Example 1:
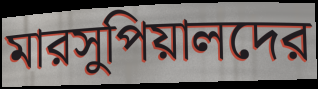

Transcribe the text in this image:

মারসুপিয়ালদের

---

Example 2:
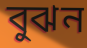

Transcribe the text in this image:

বুঝন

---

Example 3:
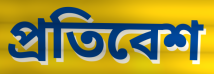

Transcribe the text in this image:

প্রতিবেশ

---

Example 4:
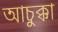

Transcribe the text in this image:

আচুক্কা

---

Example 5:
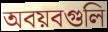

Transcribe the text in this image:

অবয়বগুলি